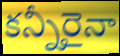
కన్నీరైనా